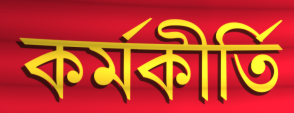
কর্মকীর্তি